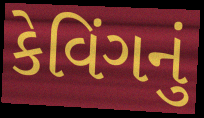
કેવિંગનું